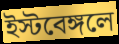
ইস্টবেঙ্গলে